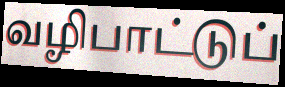
வழிபாட்டுப்